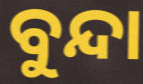
ବୁନ୍ଦା